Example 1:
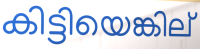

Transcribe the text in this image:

കിട്ടിയെങ്കില്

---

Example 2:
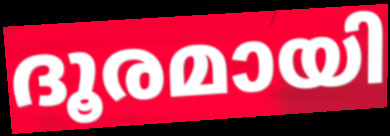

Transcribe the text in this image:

ദൂരമായി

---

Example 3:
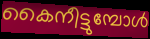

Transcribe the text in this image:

കൈനീട്ടുമ്പോൾ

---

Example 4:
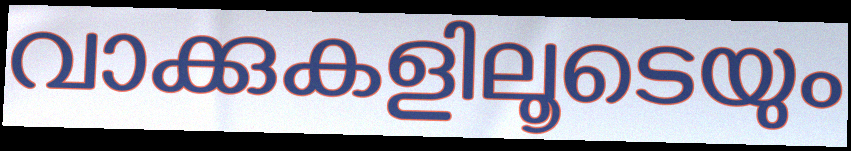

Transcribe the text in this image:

വാക്കുകളിലൂടെയും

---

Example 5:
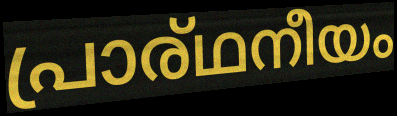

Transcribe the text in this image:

പ്രാര്ഥനീയം